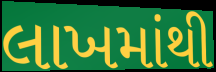
લાખમાંથી